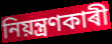
নিয়ন্ত্ৰণকাৰী